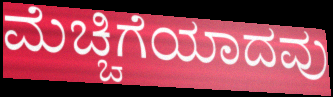
ಮೆಚ್ಚಿಗೆಯಾದವು